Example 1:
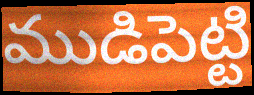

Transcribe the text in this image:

ముడిపెట్టి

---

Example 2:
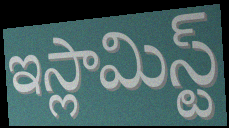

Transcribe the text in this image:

ఇస్లామిస్ట్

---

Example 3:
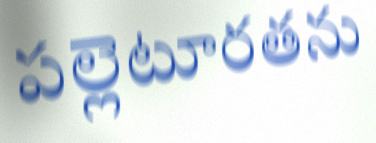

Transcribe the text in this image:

పల్లెటూరతను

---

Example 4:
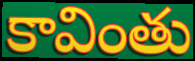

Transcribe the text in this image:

కావింతు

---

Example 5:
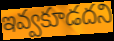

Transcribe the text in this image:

ఇవ్వకూడదని